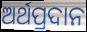
ଅର୍ଥପ୍ରଦାନ